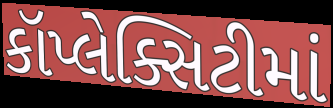
કૉપ્લેક્સિટીમાં